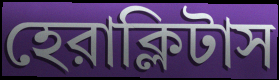
হেরাক্লিটাস